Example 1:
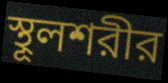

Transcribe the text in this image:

স্থূলশরীর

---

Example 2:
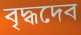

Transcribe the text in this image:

বৃদ্ধদেব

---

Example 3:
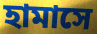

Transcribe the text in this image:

হামাসে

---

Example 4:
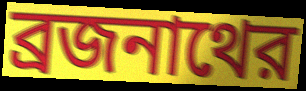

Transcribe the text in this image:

ব্রজনাথের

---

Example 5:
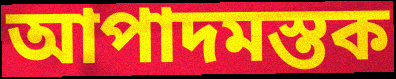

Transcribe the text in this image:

আপাদমস্তক